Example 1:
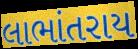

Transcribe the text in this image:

લાભાંતરાય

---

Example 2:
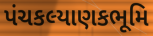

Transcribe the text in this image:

પંચકલ્યાણકભૂમિ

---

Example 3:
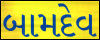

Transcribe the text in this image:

બામદેવ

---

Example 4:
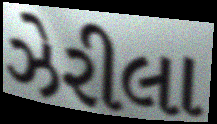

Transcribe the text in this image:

ઝેરીલા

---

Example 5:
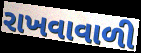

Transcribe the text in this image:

રાખવાવાળી